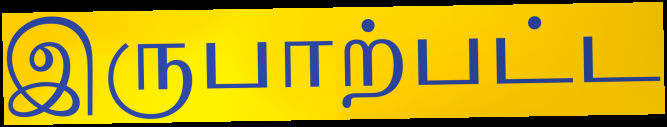
இருபாற்பட்ட